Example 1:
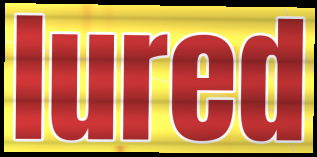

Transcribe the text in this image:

lured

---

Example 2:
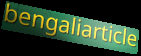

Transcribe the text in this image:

bengaliarticle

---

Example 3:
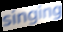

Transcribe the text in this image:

singing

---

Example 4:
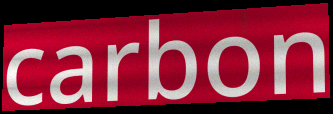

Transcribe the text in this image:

carbon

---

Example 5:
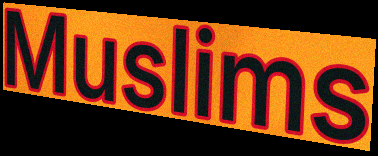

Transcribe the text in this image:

Muslims